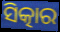
ସିତ୍କାର